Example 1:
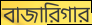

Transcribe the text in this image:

বাজারিগার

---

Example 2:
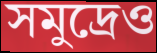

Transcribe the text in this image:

সমুদ্রেও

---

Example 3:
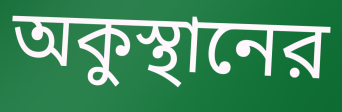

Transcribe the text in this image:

অকুস্থানের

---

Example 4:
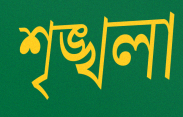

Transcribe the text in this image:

শৃঙ্খলা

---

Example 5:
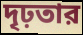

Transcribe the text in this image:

দৃঢ়তার